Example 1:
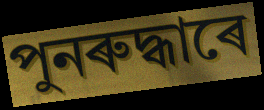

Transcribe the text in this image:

পুনৰুদ্ধাৰে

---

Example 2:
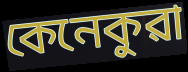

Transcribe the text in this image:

কেনেকুৱা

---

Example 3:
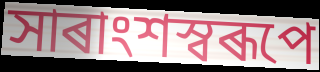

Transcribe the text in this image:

সাৰাংশস্বৰূপে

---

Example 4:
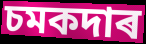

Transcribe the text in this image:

চমকদাৰ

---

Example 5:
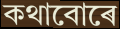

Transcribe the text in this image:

কথাবোৰে